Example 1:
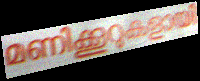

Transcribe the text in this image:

മണിക്കൂറുകളായി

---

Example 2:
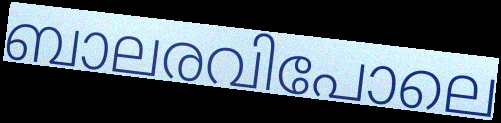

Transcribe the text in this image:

ബാലരവിപോലെ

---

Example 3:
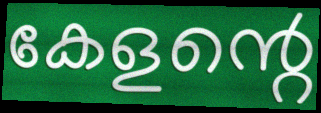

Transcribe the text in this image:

കേളന്റെ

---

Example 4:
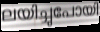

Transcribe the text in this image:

ലയിച്ചുപോയി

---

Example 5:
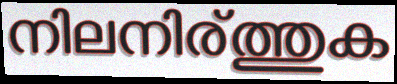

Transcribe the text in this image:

നിലനിര്ത്തുക